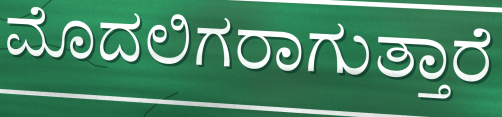
ಮೊದಲಿಗರಾಗುತ್ತಾರೆ